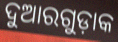
ଦୁଆରଗୁଡ଼ାକ